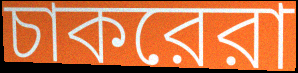
চাকরেরা